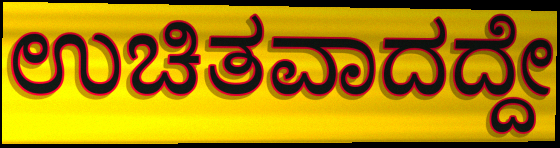
ಉಚಿತವಾದದ್ದೇ